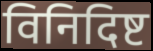
विनिदिष्ट